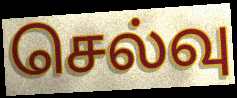
செல்வு